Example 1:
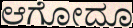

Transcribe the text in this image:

ಆಗೋದೂ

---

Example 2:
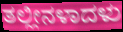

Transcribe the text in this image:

ತಲ್ಲೀನಳಾದಳು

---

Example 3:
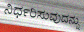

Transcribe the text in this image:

ನಿರ್ಧರಿಸುವುದನ್ನು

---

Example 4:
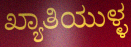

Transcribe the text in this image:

ಖ್ಯಾತಿಯುಳ್ಳ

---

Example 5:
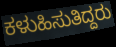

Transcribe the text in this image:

ಕಳುಹಿಸುತಿದ್ದರು